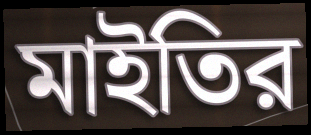
মাইতির